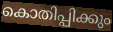
കൊതിപ്പിക്കും